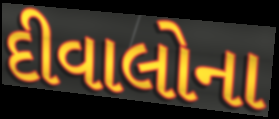
દીવાલોના